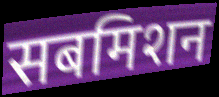
सबमिशन